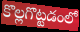
కొల్లగొట్టడంలో